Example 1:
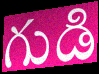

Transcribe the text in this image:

గుడి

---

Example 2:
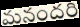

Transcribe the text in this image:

మనందరి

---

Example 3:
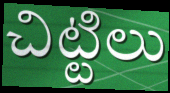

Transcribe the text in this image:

చిట్టిలు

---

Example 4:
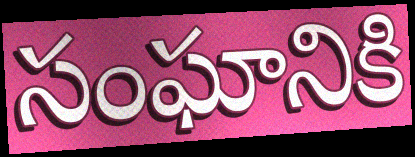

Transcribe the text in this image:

సంఘానికి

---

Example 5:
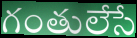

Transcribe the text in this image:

గంతులేసే